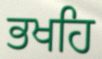
ਭਖਹਿ